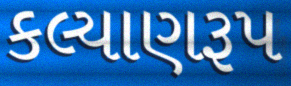
કલ્યાણરૂપ